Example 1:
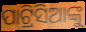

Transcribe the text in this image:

ପାଟ୍ରିସିଆଙ୍କୁ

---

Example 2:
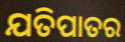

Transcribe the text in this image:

ଯତିପାତର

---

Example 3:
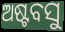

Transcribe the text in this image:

ଅଷ୍ଟବସୁ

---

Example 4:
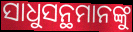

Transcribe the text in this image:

ସାଧୁସନ୍ଥମାନଙ୍କୁ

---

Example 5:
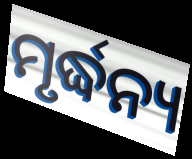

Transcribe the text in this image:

ମୃର୍ଦ୍ଧନ୍ୟ